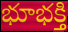
భూభక్తి